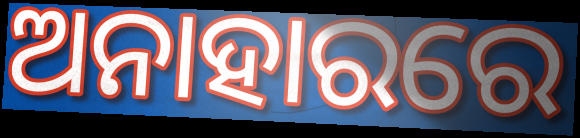
ଅନାହାରରେ